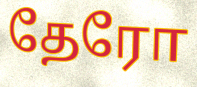
தேரோ